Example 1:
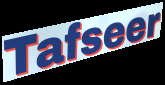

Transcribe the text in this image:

Tafseer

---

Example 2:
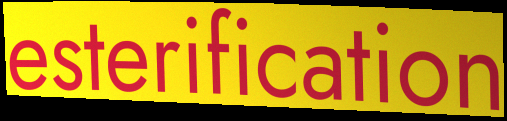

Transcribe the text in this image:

esterification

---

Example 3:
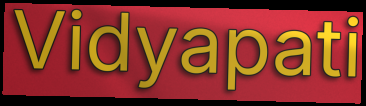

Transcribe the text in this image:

Vidyapati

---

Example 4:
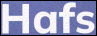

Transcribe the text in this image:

Hafs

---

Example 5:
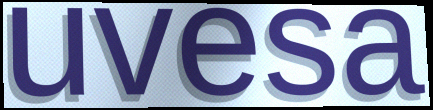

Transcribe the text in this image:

uvesa